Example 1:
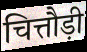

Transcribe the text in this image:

चित्तौड़ी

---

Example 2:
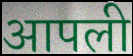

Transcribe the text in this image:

आपली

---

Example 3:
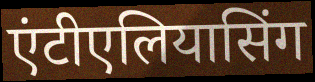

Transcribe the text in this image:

एंटीएलियासिंग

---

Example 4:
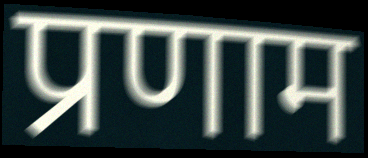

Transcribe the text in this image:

प्रणाम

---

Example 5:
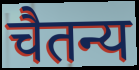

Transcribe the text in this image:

चैतन्य